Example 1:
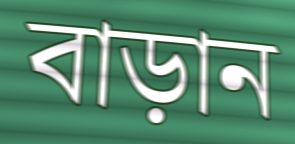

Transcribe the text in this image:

বাড়ান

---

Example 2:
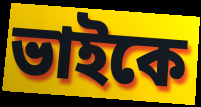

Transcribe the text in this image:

ভাইকে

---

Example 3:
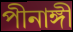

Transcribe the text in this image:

পীনাঙ্গী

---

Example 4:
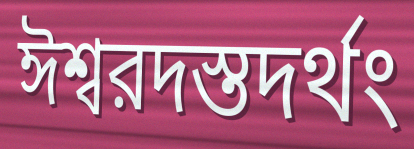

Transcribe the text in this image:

ঈশ্বরদস্তদর্থং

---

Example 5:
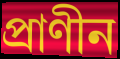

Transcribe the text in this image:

প্রাণীন